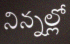
నిన్నల్లో